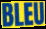
BLEU